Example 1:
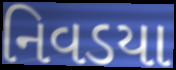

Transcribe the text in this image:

નિવડયા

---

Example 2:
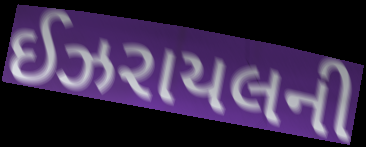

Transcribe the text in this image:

ઈઝરાયલની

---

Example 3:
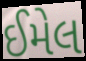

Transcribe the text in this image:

ઈમેલ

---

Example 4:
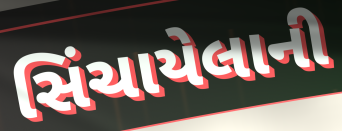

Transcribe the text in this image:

સિંચાયેલાની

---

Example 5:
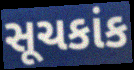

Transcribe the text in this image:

સૂચકાંક